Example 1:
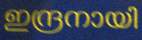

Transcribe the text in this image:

ഇന്ദ്രനായി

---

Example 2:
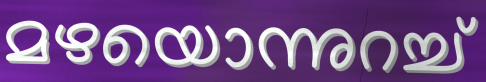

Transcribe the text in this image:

മഴയൊന്നുറച്ച്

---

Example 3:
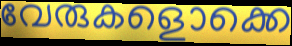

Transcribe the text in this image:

വേരുകളൊക്കെ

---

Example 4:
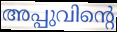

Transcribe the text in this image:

അപ്പുവിന്റെ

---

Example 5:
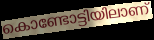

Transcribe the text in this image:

കൊണ്ടോട്ടിയിലാണ്